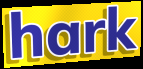
hark